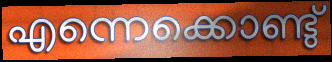
എന്നെക്കൊണ്ടു്